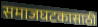
समाजघटकासाठी